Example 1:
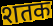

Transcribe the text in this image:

शतक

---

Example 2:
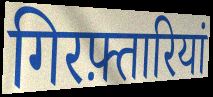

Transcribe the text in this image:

गिरफ़्तारियां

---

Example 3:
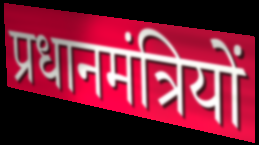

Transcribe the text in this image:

प्रधानमंत्रियों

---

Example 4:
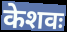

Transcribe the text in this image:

केशवः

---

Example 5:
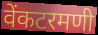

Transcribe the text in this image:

वेंकटरमणी